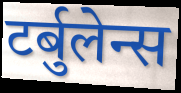
टर्बुलेन्स